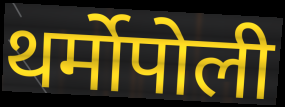
थर्मोपोली